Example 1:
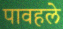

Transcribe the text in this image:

पावहले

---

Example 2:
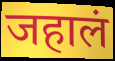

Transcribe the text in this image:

जहालं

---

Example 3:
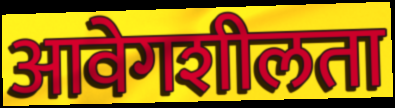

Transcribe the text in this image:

आवेगशीलता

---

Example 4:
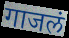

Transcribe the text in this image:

गाजलं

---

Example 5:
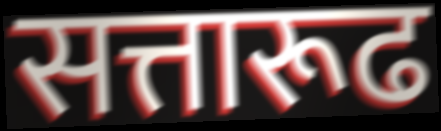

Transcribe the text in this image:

सत्तारूढ